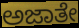
ಅಜಾತೇ